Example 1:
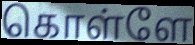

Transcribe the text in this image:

கொள்ளே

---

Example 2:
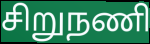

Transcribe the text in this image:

சிறுநணி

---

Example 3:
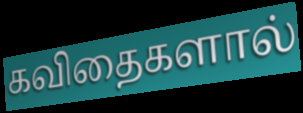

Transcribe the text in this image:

கவிதைகளால்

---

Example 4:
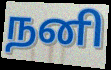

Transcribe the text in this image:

நனி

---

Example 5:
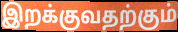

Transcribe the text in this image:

இறக்குவதற்கும்